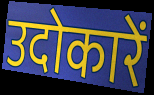
उदोकारें